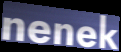
nenek